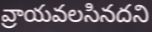
వ్రాయవలసినదని